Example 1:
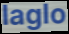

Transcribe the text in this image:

laglo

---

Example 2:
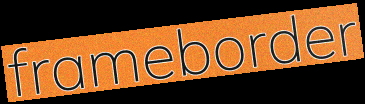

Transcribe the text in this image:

frameborder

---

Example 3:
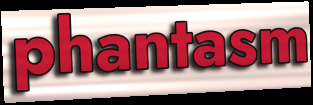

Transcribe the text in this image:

phantasm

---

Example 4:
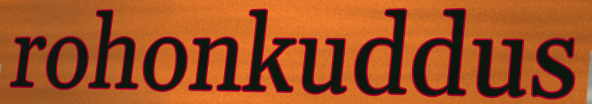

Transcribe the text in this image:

rohonkuddus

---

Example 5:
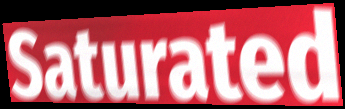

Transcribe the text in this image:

Saturated